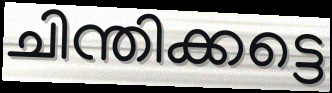
ചിന്തിക്കട്ടെ